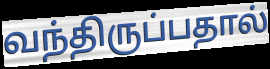
வந்திருப்பதால்